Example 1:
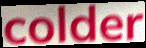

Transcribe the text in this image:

colder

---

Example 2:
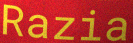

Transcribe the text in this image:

Razia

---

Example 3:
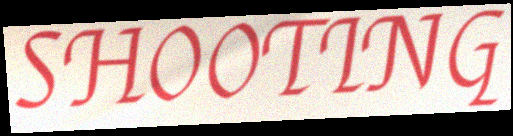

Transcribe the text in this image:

SHOOTING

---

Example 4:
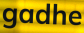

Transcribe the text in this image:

gadhe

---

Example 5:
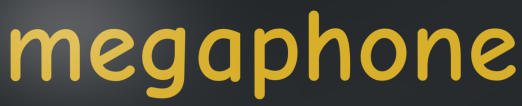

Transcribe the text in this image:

megaphone